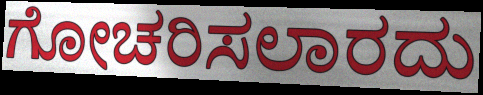
ಗೋಚರಿಸಲಾರದು